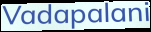
Vadapalani